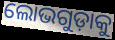
ଲୋଭଗୁଡ଼ାକୁ